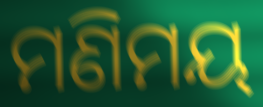
ମଣିମୟ